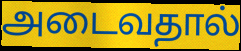
அடைவதால்